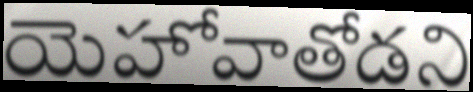
యెహోవాతోడని